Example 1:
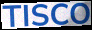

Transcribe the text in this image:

TISCO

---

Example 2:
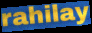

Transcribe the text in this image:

rahilay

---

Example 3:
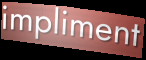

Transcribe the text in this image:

impliment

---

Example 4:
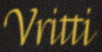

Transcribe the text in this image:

Vritti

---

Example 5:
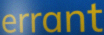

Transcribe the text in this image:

errant